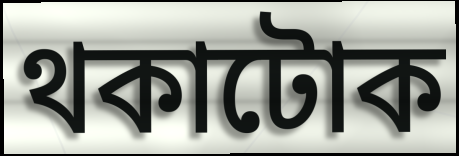
থকাটোক